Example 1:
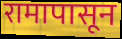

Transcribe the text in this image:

रामापासून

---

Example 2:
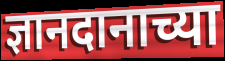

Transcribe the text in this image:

ज्ञानदानाच्या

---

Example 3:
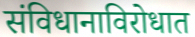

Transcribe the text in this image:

संविधानाविरोधात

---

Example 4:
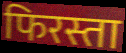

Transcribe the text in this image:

फिरस्ता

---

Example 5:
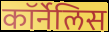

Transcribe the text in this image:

कॉर्नेलिस